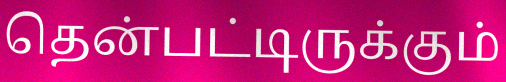
தென்பட்டிருக்கும்